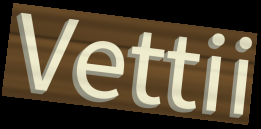
Vettii